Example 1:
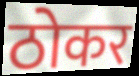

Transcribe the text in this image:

ठोकर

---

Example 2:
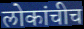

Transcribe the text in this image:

लोकांचीच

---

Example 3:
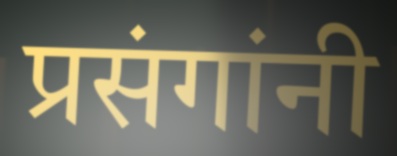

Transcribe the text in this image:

प्रसंगांनी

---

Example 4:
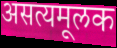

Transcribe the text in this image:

असत्यमूलक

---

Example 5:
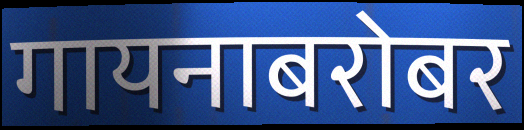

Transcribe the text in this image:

गायनाबरोबर